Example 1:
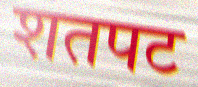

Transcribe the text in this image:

शतपट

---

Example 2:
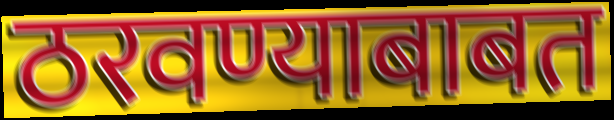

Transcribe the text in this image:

ठरवण्याबाबत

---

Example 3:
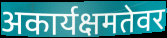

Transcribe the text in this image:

अकार्यक्षमतेवर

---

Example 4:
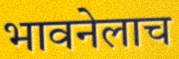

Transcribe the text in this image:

भावनेलाच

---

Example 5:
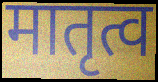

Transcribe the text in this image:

मातृत्व